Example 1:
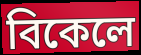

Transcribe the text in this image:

বিকেলে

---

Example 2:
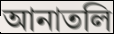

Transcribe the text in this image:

আনাতলি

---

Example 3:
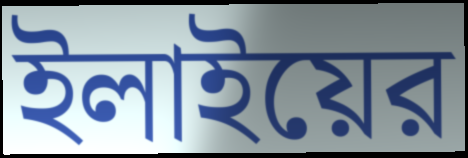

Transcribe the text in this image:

ইলাইয়ের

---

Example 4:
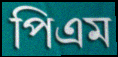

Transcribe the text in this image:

পিএম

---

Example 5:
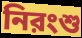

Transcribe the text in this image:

নিরংশু